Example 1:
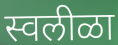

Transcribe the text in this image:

स्वलीळा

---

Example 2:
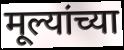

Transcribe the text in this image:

मूल्यांच्या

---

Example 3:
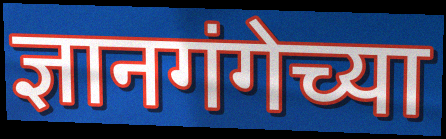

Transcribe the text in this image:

ज्ञानगंगेच्या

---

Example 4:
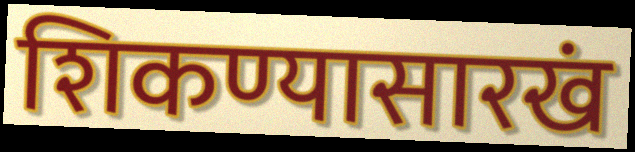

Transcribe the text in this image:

शिकण्यासारखं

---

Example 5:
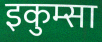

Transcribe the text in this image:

इकुम्सा